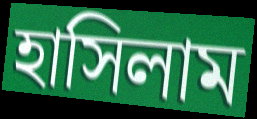
হাসিলাম